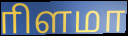
ரிளமா